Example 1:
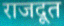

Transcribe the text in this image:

राजदूत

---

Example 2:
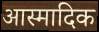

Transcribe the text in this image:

आस्मादिक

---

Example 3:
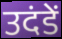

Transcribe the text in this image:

उदंडें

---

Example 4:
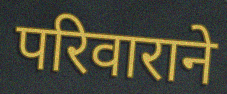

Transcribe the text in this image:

परिवाराने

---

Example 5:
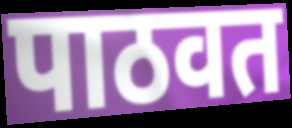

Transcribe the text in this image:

पाठवत